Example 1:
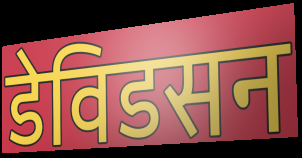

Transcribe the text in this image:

डेविडसन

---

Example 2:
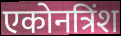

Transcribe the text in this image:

एकोनत्रिंश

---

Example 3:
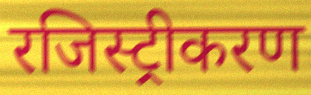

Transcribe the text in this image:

रजिस्ट्रीकरण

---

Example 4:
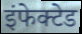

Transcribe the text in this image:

इंफेक्टेड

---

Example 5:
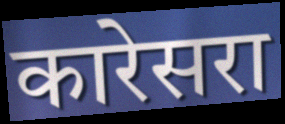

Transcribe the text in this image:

कारेसरा